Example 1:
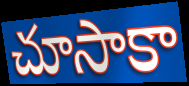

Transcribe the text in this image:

చూసాకా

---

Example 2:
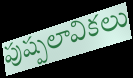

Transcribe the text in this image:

పుష్పలావికలు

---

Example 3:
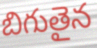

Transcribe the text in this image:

బిగుతైన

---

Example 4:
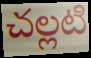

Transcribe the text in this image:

చల్లటి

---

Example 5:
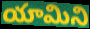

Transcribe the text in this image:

యామిని